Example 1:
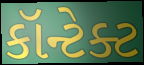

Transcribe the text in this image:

કૉન્ટેક્ટ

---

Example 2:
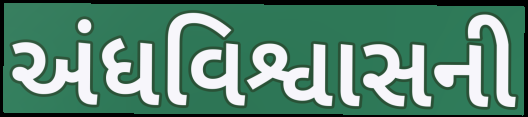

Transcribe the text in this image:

અંધવિશ્વાસની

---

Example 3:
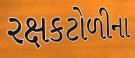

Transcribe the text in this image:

રક્ષકટોળીના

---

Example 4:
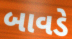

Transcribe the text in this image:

બાવડે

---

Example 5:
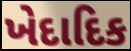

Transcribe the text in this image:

ખેદાદિક